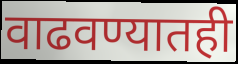
वाढवण्यातही